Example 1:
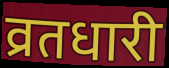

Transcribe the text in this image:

व्रतधारी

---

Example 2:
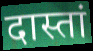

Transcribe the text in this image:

दास्तां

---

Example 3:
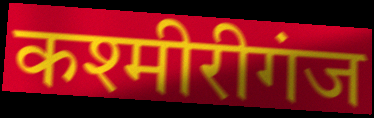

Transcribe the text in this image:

कश्मीरीगंज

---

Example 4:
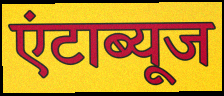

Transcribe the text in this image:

एंटाब्यूज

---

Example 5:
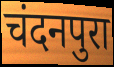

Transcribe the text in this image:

चंदनपुरा